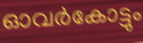
ഓവർകോട്ടും